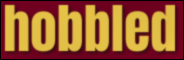
hobbled